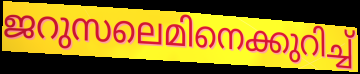
ജറുസലെമിനെക്കുറിച്ച്